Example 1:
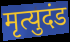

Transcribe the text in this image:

मृत्युदंड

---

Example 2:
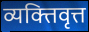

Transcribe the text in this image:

व्यक्तिवृत्त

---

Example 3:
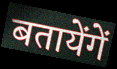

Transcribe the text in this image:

बतायेंगें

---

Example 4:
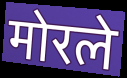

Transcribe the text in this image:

मोरले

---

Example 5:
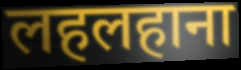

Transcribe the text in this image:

लहलहाना